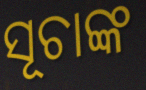
ସୂଚାଙ୍କ